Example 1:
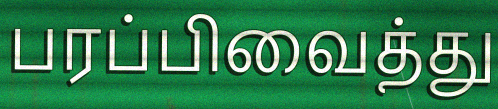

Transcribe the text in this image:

பரப்பிவைத்து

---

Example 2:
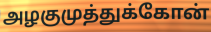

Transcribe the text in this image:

அழகுமுத்துக்கோன்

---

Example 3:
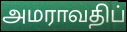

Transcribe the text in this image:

அமராவதிப்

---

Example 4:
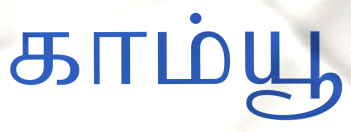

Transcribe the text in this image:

காம்யூ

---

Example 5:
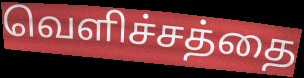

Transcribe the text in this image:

வெளிச்சத்தை